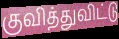
குவித்துவிட்டு